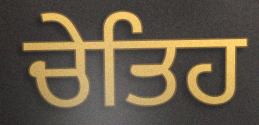
ਚੇਤਿਹ